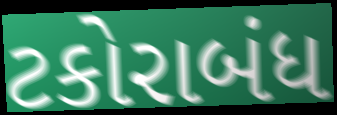
ટકોરાબંધ